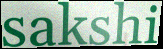
sakshi